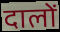
दालों